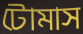
টোমাস